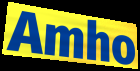
Amho